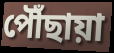
পৌঁছায়া